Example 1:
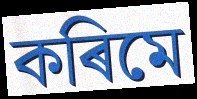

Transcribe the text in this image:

কৰিমে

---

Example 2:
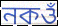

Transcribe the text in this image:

নকওঁ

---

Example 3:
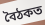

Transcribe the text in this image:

বৈঠকত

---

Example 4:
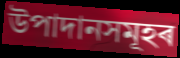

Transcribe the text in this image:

উপাদানসমূহৰ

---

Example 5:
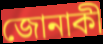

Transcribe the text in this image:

জোনাকী